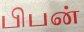
பிபன்